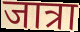
जात्रा